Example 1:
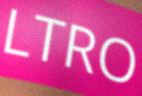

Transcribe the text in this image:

LTRO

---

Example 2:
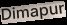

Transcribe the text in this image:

Dimapur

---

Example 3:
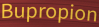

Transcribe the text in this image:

Bupropion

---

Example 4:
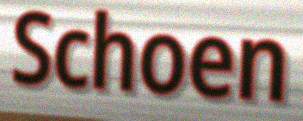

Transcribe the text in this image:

Schoen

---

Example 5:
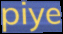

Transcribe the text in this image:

piye